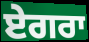
ਏਗਰਾ